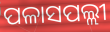
ପଳାସପଲ୍ଲୀ